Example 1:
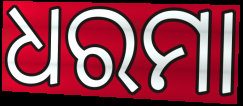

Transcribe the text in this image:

ଧରମା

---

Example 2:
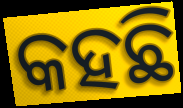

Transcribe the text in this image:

କହଛି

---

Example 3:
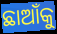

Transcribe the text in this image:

ଛାଆଁକୁ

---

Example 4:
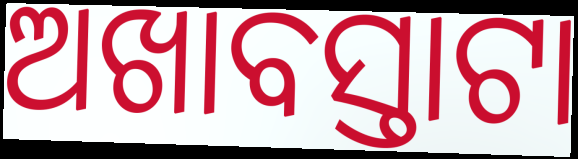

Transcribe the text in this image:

ଅଖାବସ୍ତାଟା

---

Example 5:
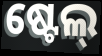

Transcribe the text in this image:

ଷ୍ଟେଲ୍